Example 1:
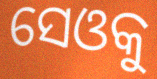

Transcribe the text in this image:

ସେଓକୁ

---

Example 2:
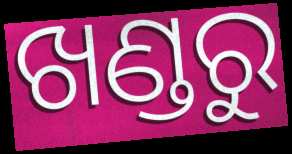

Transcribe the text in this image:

ଖଣ୍ଡରୁ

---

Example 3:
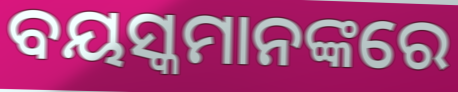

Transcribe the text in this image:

ବୟସ୍କମାନଙ୍କରେ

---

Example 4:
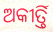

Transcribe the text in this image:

ଅକୀର୍ତ୍ତି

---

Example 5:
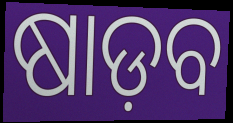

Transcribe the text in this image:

ଷାଡ଼ବ